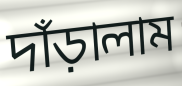
দাঁড়ালাম